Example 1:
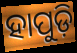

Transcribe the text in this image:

ହାପୁଡ଼ି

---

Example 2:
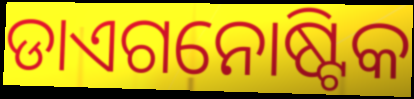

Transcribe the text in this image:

ଡାଏଗନୋଷ୍ଟିକ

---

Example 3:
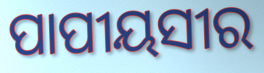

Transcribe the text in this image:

ପାପୀୟସୀର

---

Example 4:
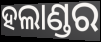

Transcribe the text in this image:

ହଲାଣ୍ଡର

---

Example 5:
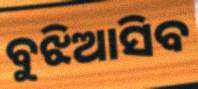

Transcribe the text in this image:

ବୁଝିଆସିବ